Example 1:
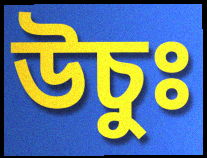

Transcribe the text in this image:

উচুঃ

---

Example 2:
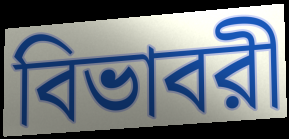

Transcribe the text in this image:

বিভাবরী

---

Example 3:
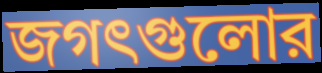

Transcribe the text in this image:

জগৎগুলোর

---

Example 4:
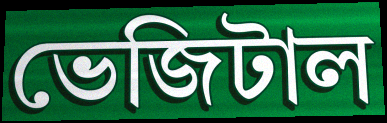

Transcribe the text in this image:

ভেজিটাল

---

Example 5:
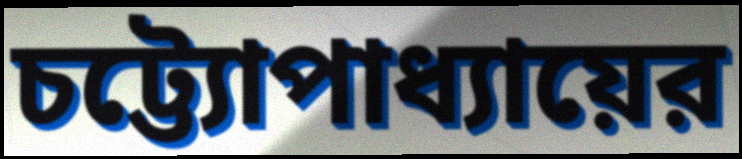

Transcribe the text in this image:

চট্ট্যোপাধ্যায়ের